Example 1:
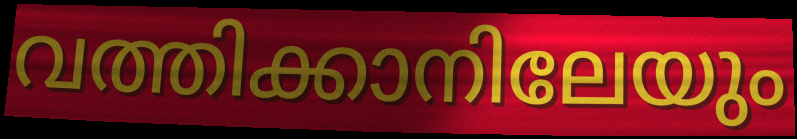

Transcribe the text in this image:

വത്തിക്കാനിലേയും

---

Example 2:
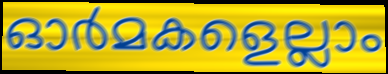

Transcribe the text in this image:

ഓർമകളെല്ലാം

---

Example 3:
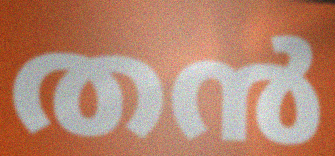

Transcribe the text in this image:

തൻ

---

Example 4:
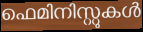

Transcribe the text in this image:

ഫെമിനിസ്റ്റുകൾ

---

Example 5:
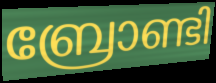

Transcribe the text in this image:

ബ്രോണ്ടി